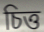
চিত্ত